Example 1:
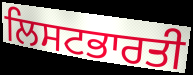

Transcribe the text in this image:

ਲਿਸਟਭਾਰਤੀ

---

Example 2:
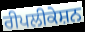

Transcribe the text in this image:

ਰੀਪਲੀਕੇਸ਼ਨ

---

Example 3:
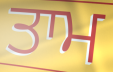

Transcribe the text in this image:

ਤਾਮ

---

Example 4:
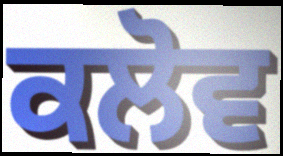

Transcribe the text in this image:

ਕਲੋਵ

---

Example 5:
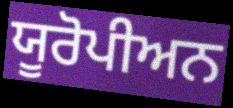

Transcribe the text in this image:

ਯੂਰੋਪੀਅਨ